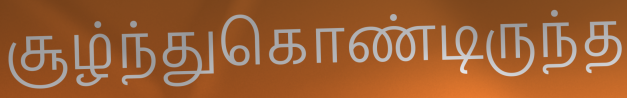
சூழ்ந்துகொண்டிருந்த